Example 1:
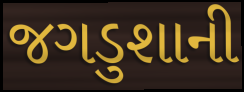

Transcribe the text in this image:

જગડુશાની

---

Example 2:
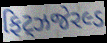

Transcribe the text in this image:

ફિટ્ઝજેરલ્ડ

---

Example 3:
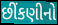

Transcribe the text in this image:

છીંકણીનો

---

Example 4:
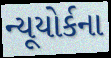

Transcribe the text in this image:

ન્યૂયોર્કના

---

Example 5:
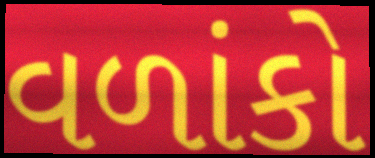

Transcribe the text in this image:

વળાંકો